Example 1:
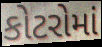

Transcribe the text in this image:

કોટરોમાં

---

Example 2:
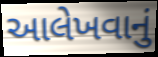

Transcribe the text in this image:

આલેખવાનું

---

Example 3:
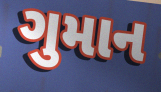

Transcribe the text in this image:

ગુમાન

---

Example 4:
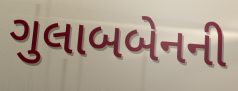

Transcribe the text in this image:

ગુલાબબેનની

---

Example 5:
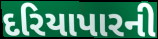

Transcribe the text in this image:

દરિયાપારની